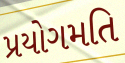
પ્રયોગમતિ